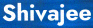
Shivajee